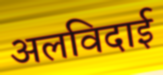
अलविदाई